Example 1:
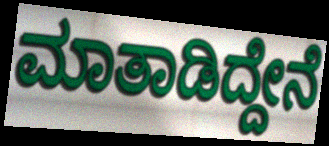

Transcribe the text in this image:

ಮಾತಾಡಿದ್ದೇನೆ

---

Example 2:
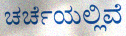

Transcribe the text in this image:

ಚರ್ಚೆಯಲ್ಲಿವೆ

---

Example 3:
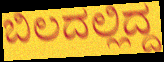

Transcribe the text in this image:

ಬಿಲದಲ್ಲಿದ್ದ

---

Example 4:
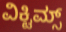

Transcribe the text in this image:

ವಿಕ್ಟಿಮ್ಸ್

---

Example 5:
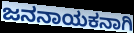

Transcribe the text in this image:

ಜನನಾಯಕನಾಗಿ